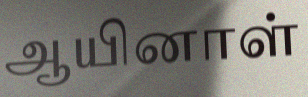
ஆயினாள்